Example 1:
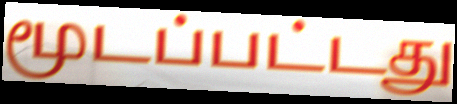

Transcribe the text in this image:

மூடப்பட்டது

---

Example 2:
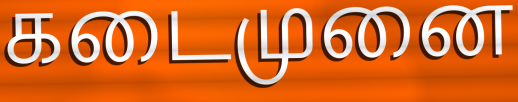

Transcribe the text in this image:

கடைமுனை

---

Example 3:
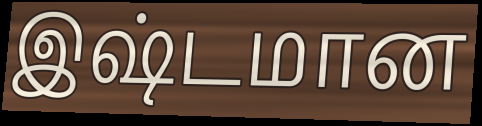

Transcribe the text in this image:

இஷ்டமான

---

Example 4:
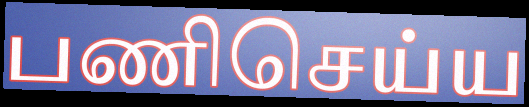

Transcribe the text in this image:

பணிசெய்ய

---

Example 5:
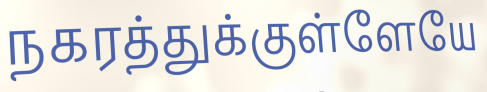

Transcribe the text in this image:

நகரத்துக்குள்ளேயே